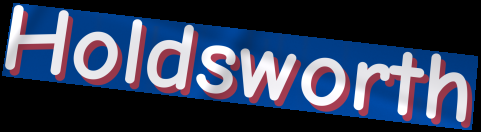
Holdsworth